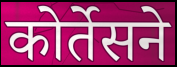
कोर्तेसने